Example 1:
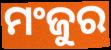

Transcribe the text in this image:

ମଂଜୁର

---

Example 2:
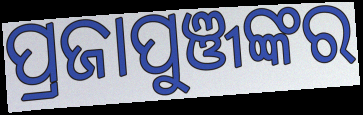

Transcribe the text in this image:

ପ୍ରଜାପୁଞ୍ଜଙ୍କର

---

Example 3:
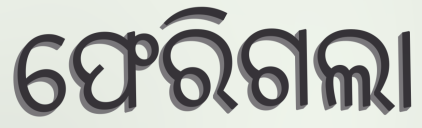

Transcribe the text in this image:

ଫେରିଗଲା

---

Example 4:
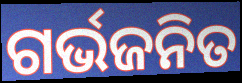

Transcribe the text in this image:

ଗର୍ଭଜନିତ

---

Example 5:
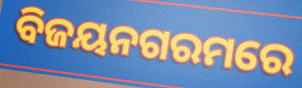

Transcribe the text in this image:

ବିଜୟନଗରମରେ